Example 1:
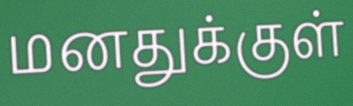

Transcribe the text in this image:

மனதுக்குள்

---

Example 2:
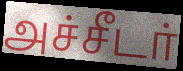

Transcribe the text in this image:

அச்சீடர்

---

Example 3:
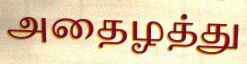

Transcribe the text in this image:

அதைழத்து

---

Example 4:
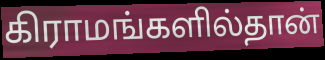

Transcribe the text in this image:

கிராமங்களில்தான்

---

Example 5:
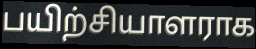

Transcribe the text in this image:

பயிற்சியாளராக